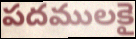
పదములకై